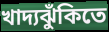
খাদ্যঝুঁকিতে